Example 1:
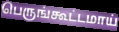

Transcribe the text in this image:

பெருங்கூட்டமாய்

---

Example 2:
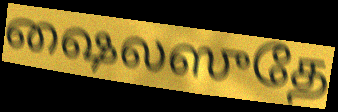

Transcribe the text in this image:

ஷைலஸுதே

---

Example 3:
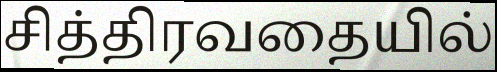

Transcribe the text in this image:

சித்திரவதையில்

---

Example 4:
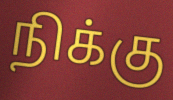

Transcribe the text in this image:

நிக்கு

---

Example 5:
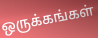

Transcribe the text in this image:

ஒருக்கங்கள்